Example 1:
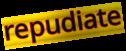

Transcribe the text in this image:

repudiate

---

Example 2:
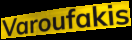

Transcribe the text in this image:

Varoufakis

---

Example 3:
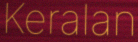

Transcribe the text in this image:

Keralan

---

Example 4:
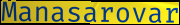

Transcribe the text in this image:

Manasarovar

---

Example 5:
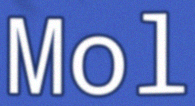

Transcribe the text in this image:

Mol